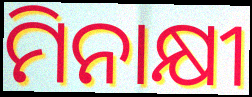
ମିନାକ୍ଷୀ